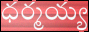
ధర్మయ్య